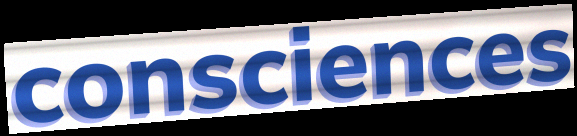
consciences